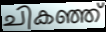
ചികഞ്ഞ്